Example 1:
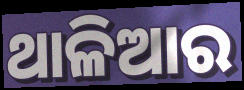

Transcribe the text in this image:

ଥାଳିଆର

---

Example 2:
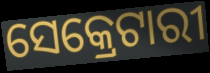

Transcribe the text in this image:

ସେକ୍ରେଟାରୀ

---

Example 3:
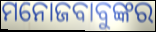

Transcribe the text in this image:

ମନୋଜବାବୁଙ୍କର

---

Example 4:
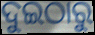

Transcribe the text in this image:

ଦୁଇଠାରୁ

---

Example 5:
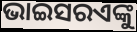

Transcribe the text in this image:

ଭାଇସରଏଙ୍କୁ